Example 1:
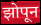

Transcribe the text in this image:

झोपून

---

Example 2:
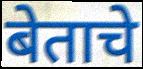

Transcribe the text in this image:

बेताचे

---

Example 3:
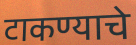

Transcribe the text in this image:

टाकण्याचे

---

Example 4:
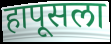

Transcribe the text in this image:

हापूसला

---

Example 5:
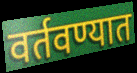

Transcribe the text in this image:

वर्तवण्यात